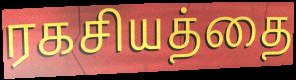
ரகசியத்தை